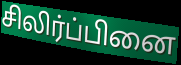
சிலிர்ப்பினை